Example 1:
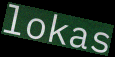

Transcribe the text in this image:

lokas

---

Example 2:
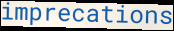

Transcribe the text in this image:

imprecations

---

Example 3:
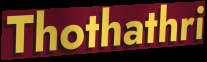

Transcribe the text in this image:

Thothathri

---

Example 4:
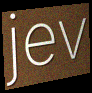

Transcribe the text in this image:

jev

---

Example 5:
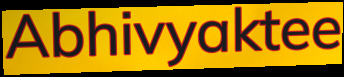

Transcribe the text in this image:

Abhivyaktee